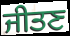
ਜੀਤਣ